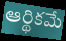
ఆర్థికమే